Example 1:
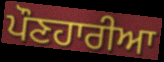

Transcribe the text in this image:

ਪੌਣਹਾਰੀਆ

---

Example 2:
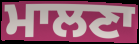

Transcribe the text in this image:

ਮਾਲਣਾ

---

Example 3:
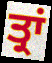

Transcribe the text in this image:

ਤ੍ਰਾਂ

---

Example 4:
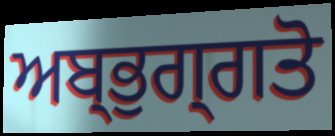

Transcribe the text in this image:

ਅਬ੍ਭੁਗ੍ਗਤੋ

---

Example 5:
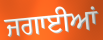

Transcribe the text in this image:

ਜਗਾਈਆਂ